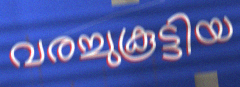
വരച്ചുകൂട്ടിയ